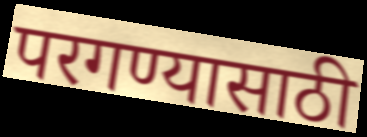
परगण्यासाठी